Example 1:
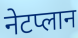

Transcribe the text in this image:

नेटप्लान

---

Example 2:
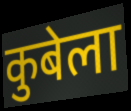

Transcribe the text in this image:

कुबेला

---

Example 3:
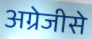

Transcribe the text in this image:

अग्रेजीसे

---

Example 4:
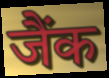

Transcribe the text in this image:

जैंक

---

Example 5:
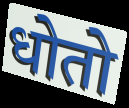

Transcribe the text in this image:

धोतो